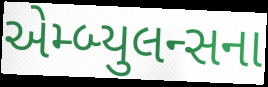
એમ્બ્યુલન્સના